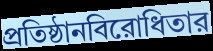
প্রতিষ্ঠানবিরোধিতার